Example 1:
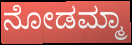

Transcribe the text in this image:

ನೋಡಮ್ಮಾ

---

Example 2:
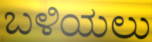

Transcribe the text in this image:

ಬಳಿಯಲು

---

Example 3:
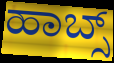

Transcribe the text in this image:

ಹಾಬ್ಸ್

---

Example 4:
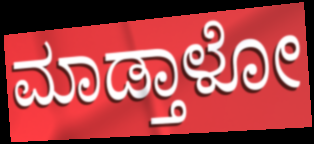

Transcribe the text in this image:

ಮಾಡ್ತಾಳೋ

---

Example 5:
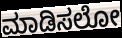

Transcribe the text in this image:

ಮಾಡಿಸಲೋ